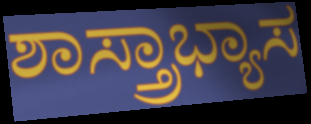
ಶಾಸ್ತ್ರಾಭ್ಯಾಸ